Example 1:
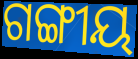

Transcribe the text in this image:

ଗଙ୍ଗୀୟ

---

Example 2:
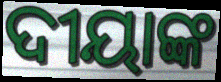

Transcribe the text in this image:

ଦୀୟାଙ୍କ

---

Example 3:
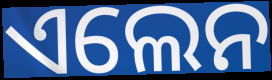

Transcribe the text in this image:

ଏଲେନ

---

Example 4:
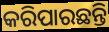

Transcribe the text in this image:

କରିପାରଛନ୍ତି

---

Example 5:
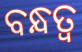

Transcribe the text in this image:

ବନ୍ଧତ୍ୱ